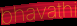
bhavathi